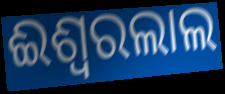
ଈଶ୍ଵରଲାଲ